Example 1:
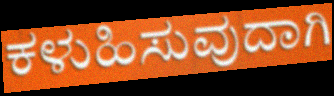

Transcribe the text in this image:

ಕಳುಹಿಸುವುದಾಗಿ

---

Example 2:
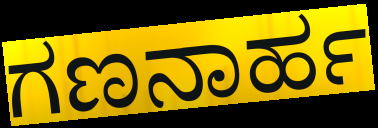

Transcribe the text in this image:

ಗಣನಾರ್ಹ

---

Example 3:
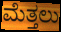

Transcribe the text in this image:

ಮೆತ್ತಲು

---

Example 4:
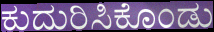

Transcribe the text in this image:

ಕುದುರಿಸಿಕೊಂಡು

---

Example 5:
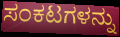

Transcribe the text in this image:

ಸಂಕಟಗಳನ್ನು